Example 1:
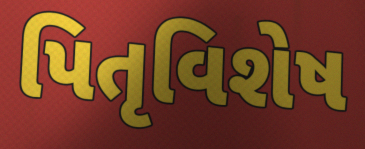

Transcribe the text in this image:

પિતૃવિશેષ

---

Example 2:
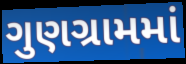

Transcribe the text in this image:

ગુણગ્રામમાં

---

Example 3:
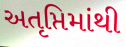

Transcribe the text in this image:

અતૃપ્તિમાંથી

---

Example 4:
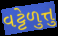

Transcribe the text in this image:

વટ્ટેળુત્તુ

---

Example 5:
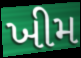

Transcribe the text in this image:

ખીમ